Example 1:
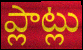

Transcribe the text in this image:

ప్లాట్లు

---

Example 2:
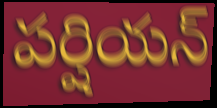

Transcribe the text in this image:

పర్షియన్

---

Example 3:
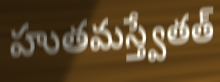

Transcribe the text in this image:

హుతమస్త్వేతత్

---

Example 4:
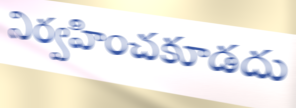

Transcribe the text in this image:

నిర్వహించకూడదు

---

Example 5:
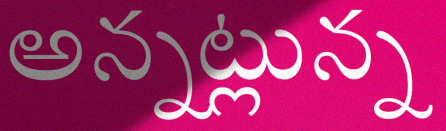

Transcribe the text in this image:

అన్నట్లున్న